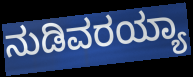
ನುಡಿವರಯ್ಯಾ